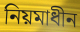
নিয়মাধীন